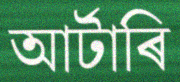
আৰ্টাৰি